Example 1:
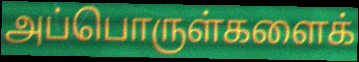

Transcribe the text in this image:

அப்பொருள்களைக்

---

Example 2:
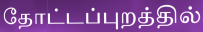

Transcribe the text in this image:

தோட்டப்புறத்தில்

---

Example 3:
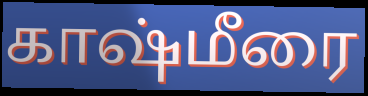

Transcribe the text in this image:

காஷ்மீரை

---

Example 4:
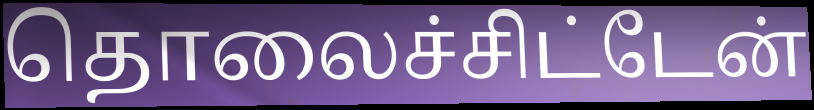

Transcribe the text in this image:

தொலைச்சிட்டேன்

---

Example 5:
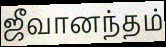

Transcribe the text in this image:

ஜீவானந்தம்